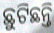
ଛୁଟିଛନ୍ତି